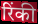
रिंकी